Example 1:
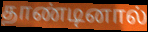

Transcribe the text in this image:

தாண்டினால்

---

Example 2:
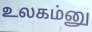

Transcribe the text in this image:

உலகம்னு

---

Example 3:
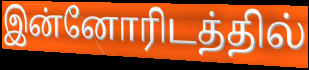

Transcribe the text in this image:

இன்னோரிடத்தில்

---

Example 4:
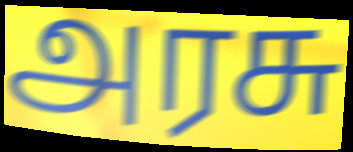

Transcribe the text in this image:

அரசு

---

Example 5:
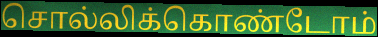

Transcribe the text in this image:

சொல்லிக்கொண்டோம்